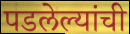
पडलेल्यांची